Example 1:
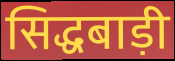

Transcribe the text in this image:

सिद्धबाड़ी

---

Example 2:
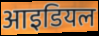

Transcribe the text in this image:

आइडियल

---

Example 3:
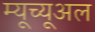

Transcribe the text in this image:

म्यूच्यूअल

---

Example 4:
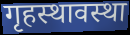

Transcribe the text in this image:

गृहस्थावस्था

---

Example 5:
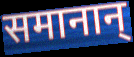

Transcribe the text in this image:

समानान्